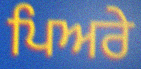
ਪਿਅਰੇ